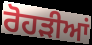
ਰੋਹੜੀਆਂ